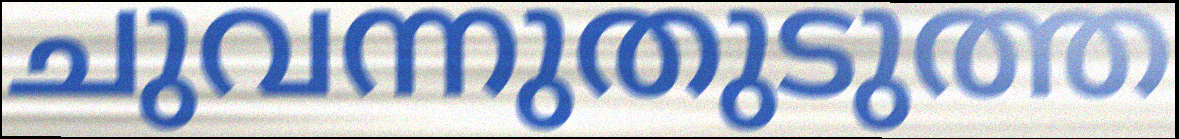
ചുവന്നുതുടുത്ത